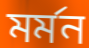
মর্মন